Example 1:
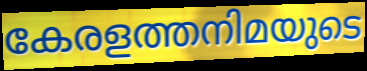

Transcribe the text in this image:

കേരളത്തനിമയുടെ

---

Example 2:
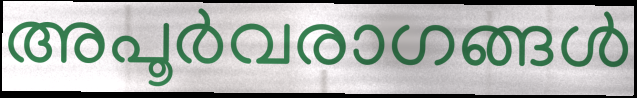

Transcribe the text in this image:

അപൂർവരാഗങ്ങൾ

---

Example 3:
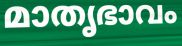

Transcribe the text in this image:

മാതൃഭാവം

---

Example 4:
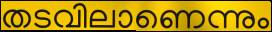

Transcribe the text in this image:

തടവിലാണെന്നും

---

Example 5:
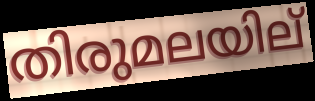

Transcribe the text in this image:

തിരുമലയില്